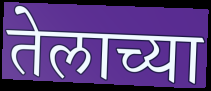
तेलाच्या